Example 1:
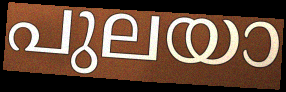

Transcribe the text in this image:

പുലയാ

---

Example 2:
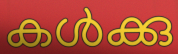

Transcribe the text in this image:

കൾക്കു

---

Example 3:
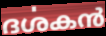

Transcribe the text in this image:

ദൎശകൻ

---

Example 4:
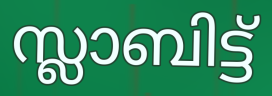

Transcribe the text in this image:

സ്ലാബിട്ട്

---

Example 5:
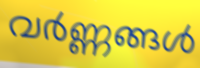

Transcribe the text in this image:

വർണ്ണങ്ങൾ